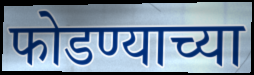
फोडण्याच्या